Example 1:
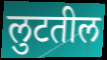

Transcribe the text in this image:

लुटतील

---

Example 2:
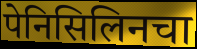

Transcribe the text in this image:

पेनिसिलिनचा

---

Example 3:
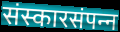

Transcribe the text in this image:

संस्कारसंपन्न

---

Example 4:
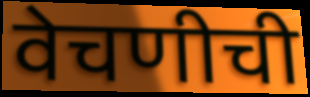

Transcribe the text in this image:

वेचणीची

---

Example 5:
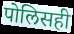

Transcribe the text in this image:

पोलिसही